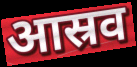
आस्रव